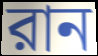
রান